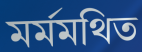
মর্মমথিত